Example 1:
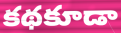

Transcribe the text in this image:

కథకూడా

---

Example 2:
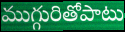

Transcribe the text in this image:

ముగ్గురితోపాటు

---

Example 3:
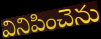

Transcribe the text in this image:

వినిపించెను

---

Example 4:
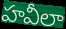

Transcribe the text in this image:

హవీలా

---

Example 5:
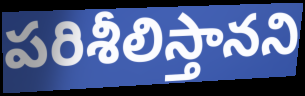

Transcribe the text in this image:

పరిశీలిస్తానని